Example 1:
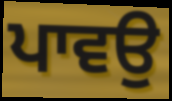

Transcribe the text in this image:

ਪਾਵਉ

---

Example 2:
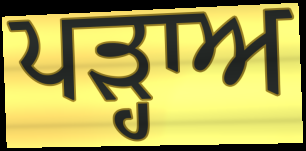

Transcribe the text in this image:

ਪੜ੍ਹਾਅ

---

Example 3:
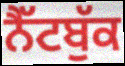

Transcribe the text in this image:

ਨੈੱਟਬੁੱਕ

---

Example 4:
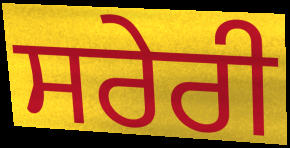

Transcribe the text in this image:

ਸਰੇਰੀ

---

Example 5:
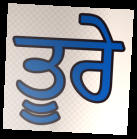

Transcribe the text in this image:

ਤੂਰੇ